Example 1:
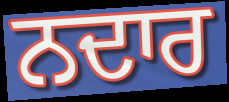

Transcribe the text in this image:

ਨਦਾਰ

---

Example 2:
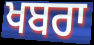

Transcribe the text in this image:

ਖਬਰਾ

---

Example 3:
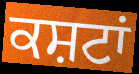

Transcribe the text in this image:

ਕਸ਼ਟਾਂ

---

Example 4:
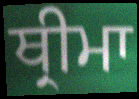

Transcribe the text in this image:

ਥ੍ਰੀਮਾ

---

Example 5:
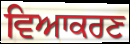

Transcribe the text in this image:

ਵਿਆਕਰਣ